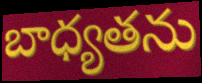
బాధ్యతను